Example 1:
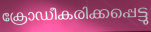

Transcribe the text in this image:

ക്രോഡീകരിക്കപ്പെട്ടു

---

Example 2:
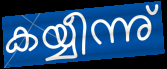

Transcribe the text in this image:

കയ്യീന്നു്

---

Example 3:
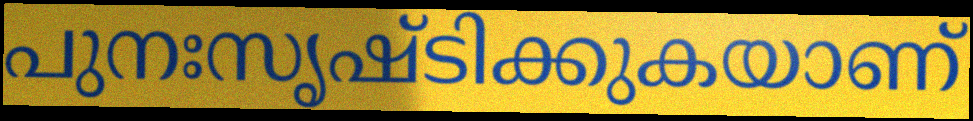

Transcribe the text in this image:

പുനഃസൃഷ്ടിക്കുകയാണ്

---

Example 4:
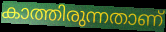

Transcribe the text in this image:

കാത്തിരുന്നതാണ്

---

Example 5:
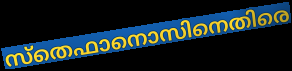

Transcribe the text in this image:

സ്തെഫാനൊസിനെതിരെ